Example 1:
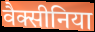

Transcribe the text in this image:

वैक्सीनिया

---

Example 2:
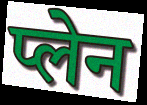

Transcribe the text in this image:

प्लेन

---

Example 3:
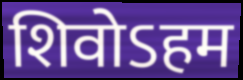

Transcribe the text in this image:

शिवोऽहम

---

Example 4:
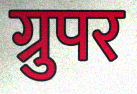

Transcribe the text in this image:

ग्रुपर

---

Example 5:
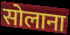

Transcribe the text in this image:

सोलाना